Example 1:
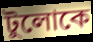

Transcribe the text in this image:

টুলোকে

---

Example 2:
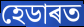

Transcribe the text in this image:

হেডাৰত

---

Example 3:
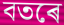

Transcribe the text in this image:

বতৰে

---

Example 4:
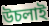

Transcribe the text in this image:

উচলাই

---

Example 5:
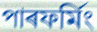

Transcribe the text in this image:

পাৰফৰ্মিং